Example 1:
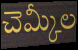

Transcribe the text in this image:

చెమ్కీల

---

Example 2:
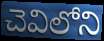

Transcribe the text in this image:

చెవిలోని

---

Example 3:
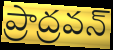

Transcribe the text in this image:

ప్రాద్రవన్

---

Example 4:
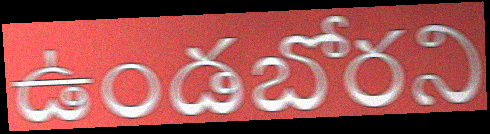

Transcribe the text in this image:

ఉండబోరని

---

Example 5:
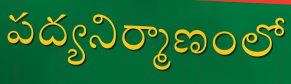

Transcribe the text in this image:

పద్యనిర్మాణంలో